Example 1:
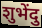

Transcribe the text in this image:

शुभेंदु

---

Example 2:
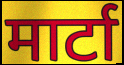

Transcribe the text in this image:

मार्टा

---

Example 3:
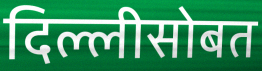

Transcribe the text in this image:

दिल्लीसोबत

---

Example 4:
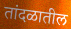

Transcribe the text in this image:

तांदळातील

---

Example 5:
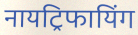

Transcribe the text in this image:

नायट्रिफायिंग